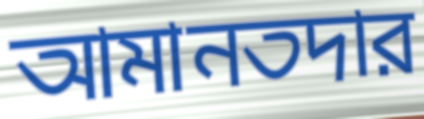
আমানতদার